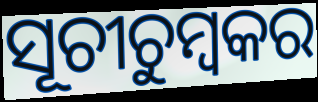
ସୂଚୀଚୁମ୍ବକର